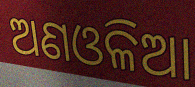
ଅଣଓଳିଆ